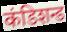
कंडिशन्ड